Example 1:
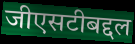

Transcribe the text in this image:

जीएसटीबद्दल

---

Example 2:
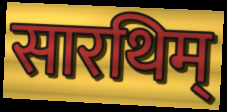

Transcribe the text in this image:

सारथिम्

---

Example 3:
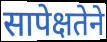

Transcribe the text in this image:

सापेक्षतेने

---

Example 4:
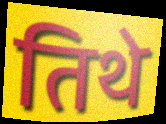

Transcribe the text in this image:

तिथे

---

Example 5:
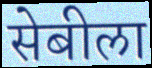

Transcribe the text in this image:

सेबीला